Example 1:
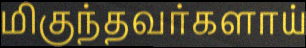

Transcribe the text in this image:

மிகுந்தவர்களாய்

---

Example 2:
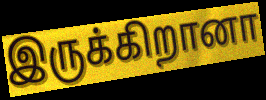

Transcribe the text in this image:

இருக்கிறானா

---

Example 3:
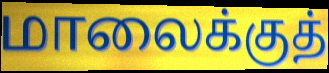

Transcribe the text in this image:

மாலைக்குத்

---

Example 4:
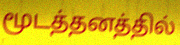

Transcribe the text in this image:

மூடத்தனத்தில்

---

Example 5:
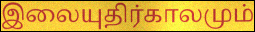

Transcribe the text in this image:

இலையுதிர்காலமும்